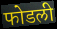
फोडली